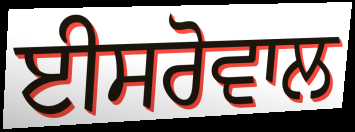
ਈਸਰੋਵਾਲ